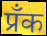
प्रँक